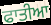
ਫਾਤੀਆ